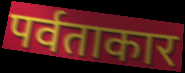
पर्वताकार